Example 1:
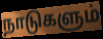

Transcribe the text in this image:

நாடுகளும்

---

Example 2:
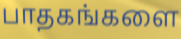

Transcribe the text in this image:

பாதகங்களை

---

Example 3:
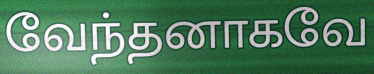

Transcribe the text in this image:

வேந்தனாகவே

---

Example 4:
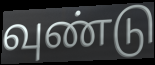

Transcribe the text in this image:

வுண்டு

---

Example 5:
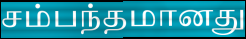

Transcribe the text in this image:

சம்பந்தமானது